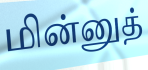
மின்னுத்